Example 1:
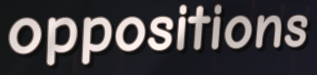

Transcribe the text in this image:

oppositions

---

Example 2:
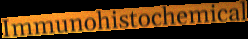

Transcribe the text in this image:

Immunohistochemical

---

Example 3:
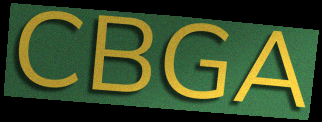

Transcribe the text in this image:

CBGA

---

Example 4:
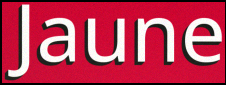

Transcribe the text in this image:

Jaune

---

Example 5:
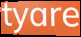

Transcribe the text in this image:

tyare